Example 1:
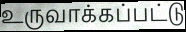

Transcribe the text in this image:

உருவாக்கப்பட்டு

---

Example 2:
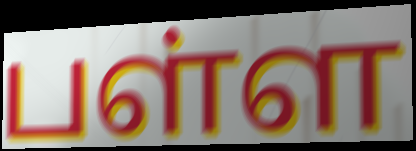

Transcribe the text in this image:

பள்ள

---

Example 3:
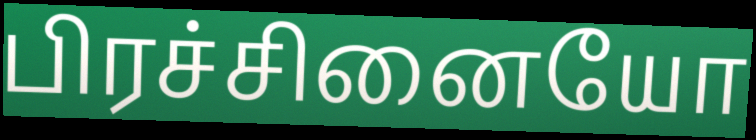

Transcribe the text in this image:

பிரச்சினையோ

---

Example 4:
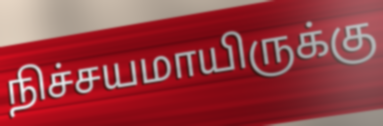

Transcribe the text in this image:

நிச்சயமாயிருக்கு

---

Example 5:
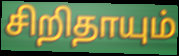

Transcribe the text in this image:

சிறிதாயும்